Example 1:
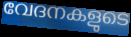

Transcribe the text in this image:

വേദനകളുടെ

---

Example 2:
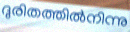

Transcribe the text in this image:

ദുരിതത്തിൽനിന്നു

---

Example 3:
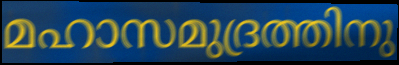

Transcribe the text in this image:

മഹാസമുദ്രത്തിനു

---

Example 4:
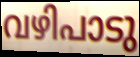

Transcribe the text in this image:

വഴിപാടു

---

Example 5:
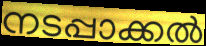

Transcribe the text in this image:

നടപ്പാക്കൽ